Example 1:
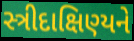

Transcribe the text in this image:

સ્ત્રીદાક્ષિણ્યને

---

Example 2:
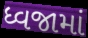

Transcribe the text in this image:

ધ્વજામાં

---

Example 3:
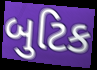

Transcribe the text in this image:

બુટિક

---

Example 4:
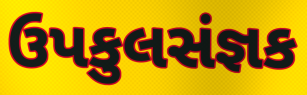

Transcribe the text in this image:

ઉપકુલસંજ્ઞક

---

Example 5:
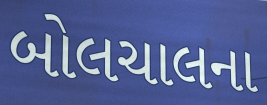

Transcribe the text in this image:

બોલચાલના